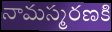
నామస్మరణకి